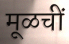
मूळचीं